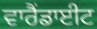
ਵਾਰੈਂਡਾਈਟ